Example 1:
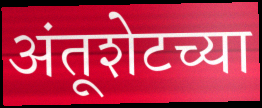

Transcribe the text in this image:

अंतूशेटच्या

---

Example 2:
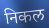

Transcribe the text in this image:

निकल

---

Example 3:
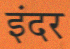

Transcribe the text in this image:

इंदर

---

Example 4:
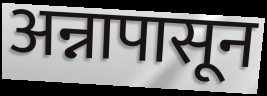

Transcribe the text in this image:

अन्नापासून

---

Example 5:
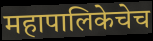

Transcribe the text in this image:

महापालिकेचेच